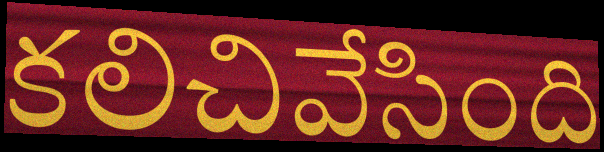
కలిచివేసింది